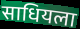
साधियला